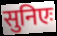
सुनिएः